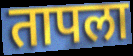
तापला